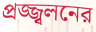
প্রজ্জ্বলনের